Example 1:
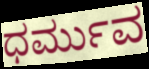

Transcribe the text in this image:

ಧರ್ಮುವ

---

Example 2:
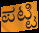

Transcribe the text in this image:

ಪಟ್ಟಿ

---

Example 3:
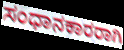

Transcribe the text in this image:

ಸಂಧಾನಕಾರರಾಗಿ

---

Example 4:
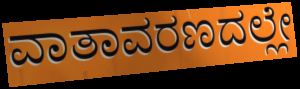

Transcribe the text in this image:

ವಾತಾವರಣದಲ್ಲೇ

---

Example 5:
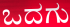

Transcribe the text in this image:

ಒದಗು